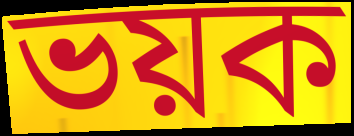
ভয়ক